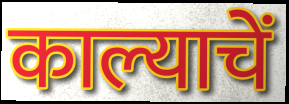
काल्याचें